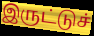
இருட்டுச்